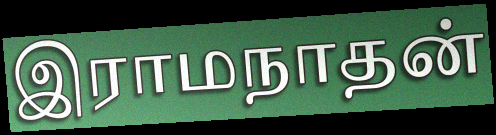
இராமநாதன்